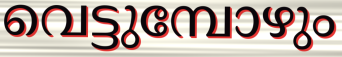
വെട്ടുമ്പോഴും